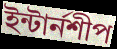
ইন্টার্নশীপ